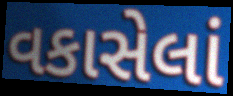
વકાસેલાં